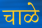
चाळे